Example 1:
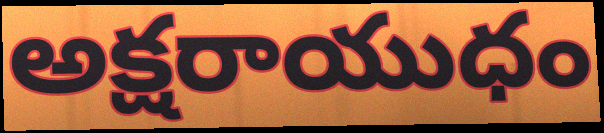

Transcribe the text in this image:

అక్షరాయుధం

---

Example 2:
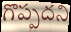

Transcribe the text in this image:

గొప్పదని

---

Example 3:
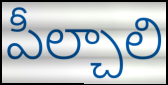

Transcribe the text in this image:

పీల్చాలి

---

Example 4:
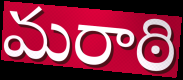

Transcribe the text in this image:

మరాఠి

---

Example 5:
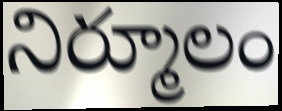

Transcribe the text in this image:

నిర్మూలం